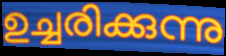
ഉച്ചരിക്കുന്നു